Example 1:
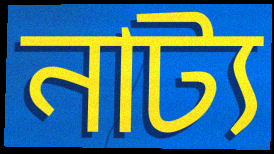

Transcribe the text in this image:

নাট্য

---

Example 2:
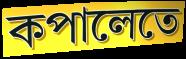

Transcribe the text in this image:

কপালেতে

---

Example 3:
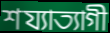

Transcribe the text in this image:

শয্যাত্যাগী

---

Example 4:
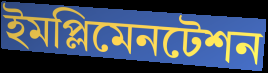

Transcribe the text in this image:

ইমপ্লিমেনটেশন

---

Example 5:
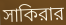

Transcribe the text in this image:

সাকিরার